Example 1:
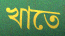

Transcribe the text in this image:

খাতে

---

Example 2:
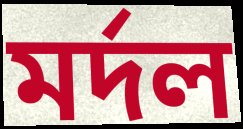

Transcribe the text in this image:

মর্দল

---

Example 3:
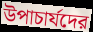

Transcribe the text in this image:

উপাচার্যদের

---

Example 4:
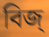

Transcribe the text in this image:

বিজ্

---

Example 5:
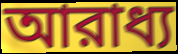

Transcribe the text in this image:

আরাধ্য